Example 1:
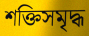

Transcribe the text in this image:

শক্তিসমৃদ্ধ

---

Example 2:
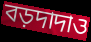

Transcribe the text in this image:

বড়দাদাও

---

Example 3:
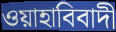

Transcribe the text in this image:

ওয়াহাবিবাদী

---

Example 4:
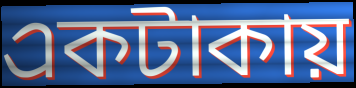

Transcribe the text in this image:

একটাকায়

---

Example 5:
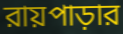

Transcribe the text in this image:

রায়পাড়ার